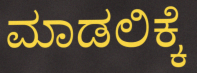
ಮಾಡಲಿಕ್ಕೆ